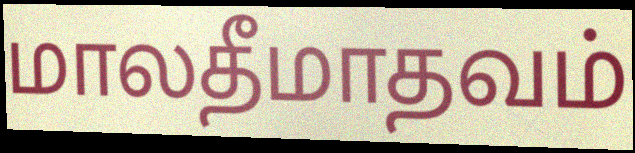
மாலதீமாதவம்